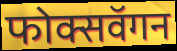
फोक्सवॅगन